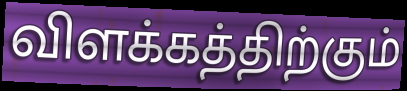
விளக்கத்திற்கும்